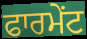
ਫਾਰਮੇਂਟ